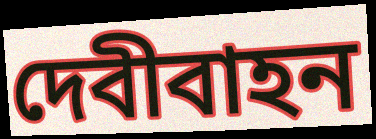
দেবীবাহন